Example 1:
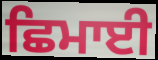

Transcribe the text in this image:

ਛਿਮਾਈ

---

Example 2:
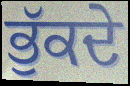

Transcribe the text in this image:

ਭੁੱਕਦੇ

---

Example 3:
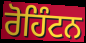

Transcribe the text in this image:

ਰੋਹਿੰਟਨ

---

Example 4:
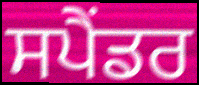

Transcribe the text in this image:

ਸਪੈਂਡਰ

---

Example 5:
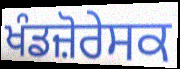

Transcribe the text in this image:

ਖੰਡਜ਼ੋਰੇਸਕ